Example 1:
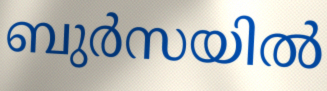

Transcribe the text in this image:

ബുർസയിൽ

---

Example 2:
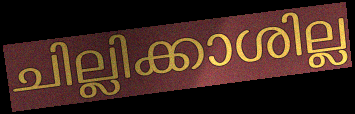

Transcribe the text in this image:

ചില്ലിക്കാശില്ല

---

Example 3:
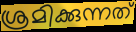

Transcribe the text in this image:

ശ്രമിക്കുന്നത്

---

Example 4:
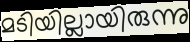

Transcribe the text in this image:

മടിയില്ലായിരുന്നു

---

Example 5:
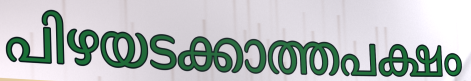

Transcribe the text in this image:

പിഴയടക്കാത്തപക്ഷം